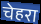
चेहरा